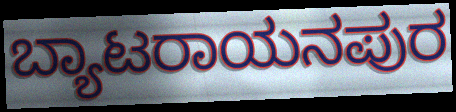
ಬ್ಯಾಟರಾಯನಪುರ